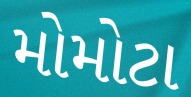
મોમોટા